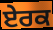
ਏਰਕ